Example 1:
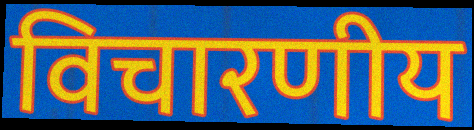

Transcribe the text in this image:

विचारणीय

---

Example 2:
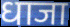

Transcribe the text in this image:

धाजा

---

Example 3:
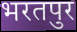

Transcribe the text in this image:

भरतपुर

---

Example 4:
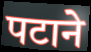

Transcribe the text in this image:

पटाने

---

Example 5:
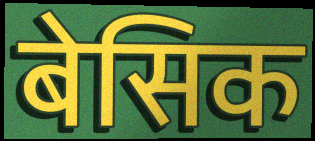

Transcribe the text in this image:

बेसिक